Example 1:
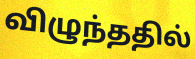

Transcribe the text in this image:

விழுந்ததில்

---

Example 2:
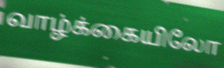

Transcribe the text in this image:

வாழ்க்கையிலோ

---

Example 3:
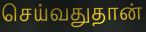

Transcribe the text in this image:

செய்வதுதான்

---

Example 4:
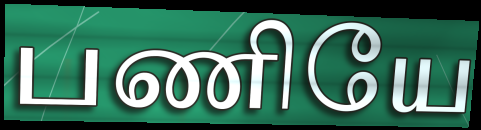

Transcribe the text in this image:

பணியே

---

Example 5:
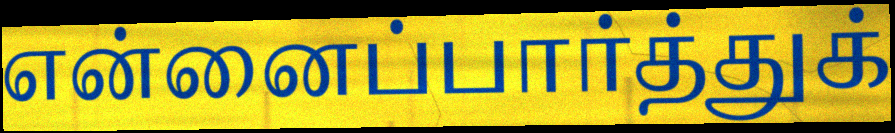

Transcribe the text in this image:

என்னைப்பார்த்துக்